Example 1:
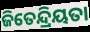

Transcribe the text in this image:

ଜିତେନ୍ଦ୍ରିୟତା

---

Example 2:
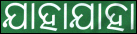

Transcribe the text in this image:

ଯାହାଯାହା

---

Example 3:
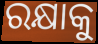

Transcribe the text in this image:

ରକ୍ଷାକୁ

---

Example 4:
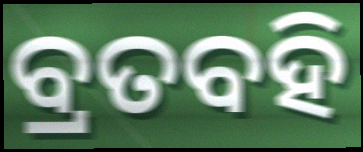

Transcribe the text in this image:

ବ୍ରତବହି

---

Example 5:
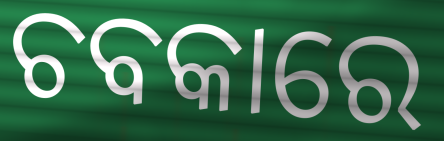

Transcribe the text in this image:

ଚବକାରେ